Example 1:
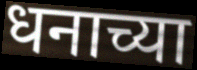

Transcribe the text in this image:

धनाच्या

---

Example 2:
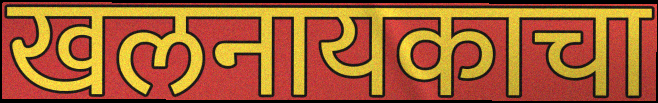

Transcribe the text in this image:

खलनायकाचा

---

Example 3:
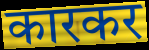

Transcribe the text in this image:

कारकर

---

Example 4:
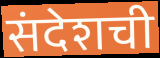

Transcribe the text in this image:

संदेशची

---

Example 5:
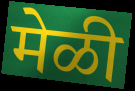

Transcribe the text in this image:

मेळी